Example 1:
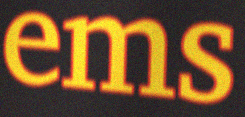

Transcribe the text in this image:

ems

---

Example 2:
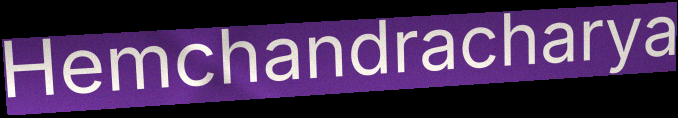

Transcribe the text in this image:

Hemchandracharya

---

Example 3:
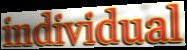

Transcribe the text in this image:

individual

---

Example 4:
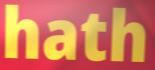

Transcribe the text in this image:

hath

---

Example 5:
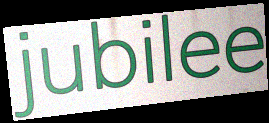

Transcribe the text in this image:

jubilee